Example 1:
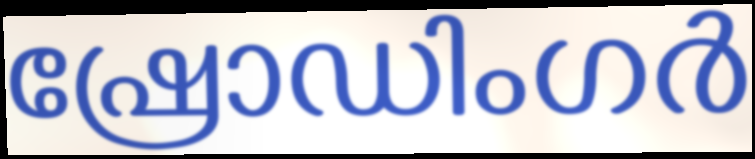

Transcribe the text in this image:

ഷ്രോഡിംഗർ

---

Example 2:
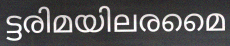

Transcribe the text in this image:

ട്ടരിമയിലരമൈ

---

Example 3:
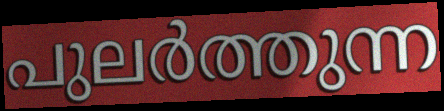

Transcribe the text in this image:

പുലർത്തുന്ന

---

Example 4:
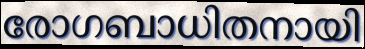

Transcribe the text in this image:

രോഗബാധിതനായി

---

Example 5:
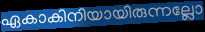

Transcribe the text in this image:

ഏകാകിനിയായിരുന്നല്ലോ